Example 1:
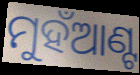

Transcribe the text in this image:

ମୁହଁଆଣ୍ଟ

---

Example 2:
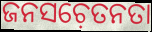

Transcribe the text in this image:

ଜନସଚ଼େତନତା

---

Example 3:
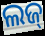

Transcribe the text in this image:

ଲଜ୍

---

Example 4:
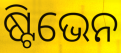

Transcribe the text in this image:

ଷ୍ଟିଭେନ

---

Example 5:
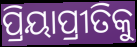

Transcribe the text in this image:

ପ୍ରିୟାପ୍ରୀତିକୁ